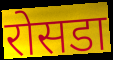
रोसडा